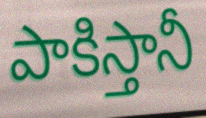
పాకిస్తానీ